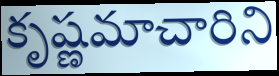
కృష్ణమాచారిని